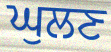
ਘੁਲਣ